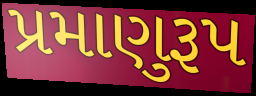
પ્રમાણુરૂપ